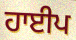
ਹਾਈਪ